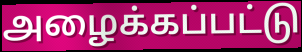
அழைக்கப்பட்டு